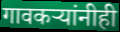
गावकऱ्यांनीही